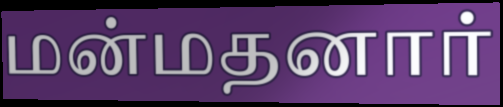
மன்மதனார்